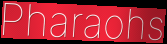
Pharaohs